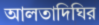
আলতাদিঘির